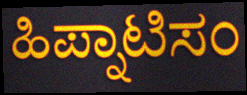
ಹಿಪ್ನಾಟಿಸಂ